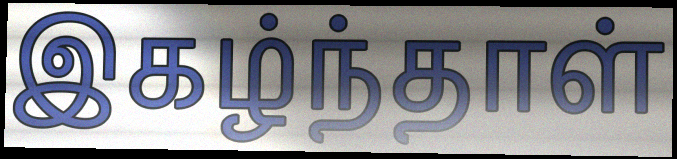
இகழ்ந்தாள்